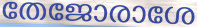
തേജോരാശേ